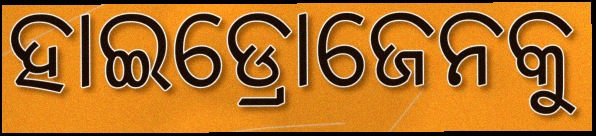
ହାଇଡ୍ରୋଜେନକୁ